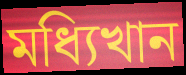
মধ্যিখান